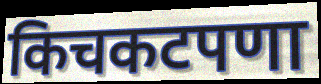
किचकटपणा